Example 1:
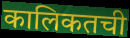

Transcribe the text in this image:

कालिकतची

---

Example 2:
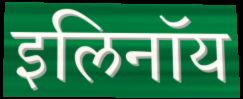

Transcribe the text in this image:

इलिनॉय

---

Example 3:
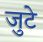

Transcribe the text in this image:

जुटे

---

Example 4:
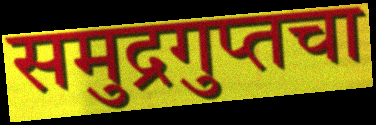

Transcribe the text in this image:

समुद्रगुप्तचा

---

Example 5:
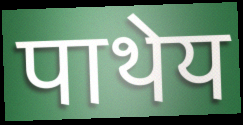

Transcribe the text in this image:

पाथेय